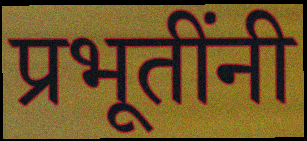
प्रभूतींनी